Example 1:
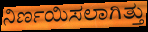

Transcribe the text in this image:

ನಿರ್ಣಯಿಸಲಾಗಿತ್ತು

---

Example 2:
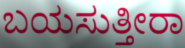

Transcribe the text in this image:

ಬಯಸುತ್ತೀರಾ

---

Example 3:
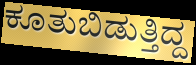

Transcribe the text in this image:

ಕೂತುಬಿಡುತ್ತಿದ್ದ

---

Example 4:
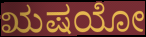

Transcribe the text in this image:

ಋಷಯೋ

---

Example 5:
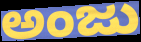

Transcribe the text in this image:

ಅಂಜು